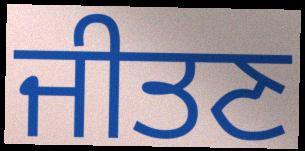
ਜੀਤਣ